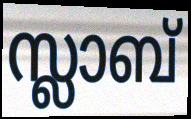
സ്ലാബ്